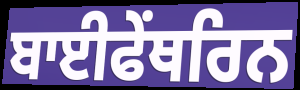
ਬਾਈਫੇਂਥਰਿਨ